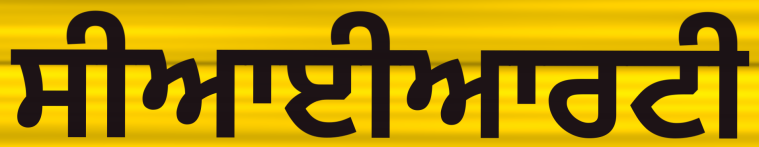
ਸੀਆਈਆਰਟੀ